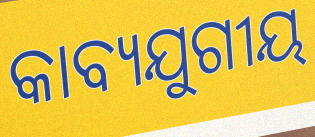
କାବ୍ୟଯୁଗୀୟ